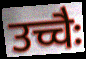
उच्चैः